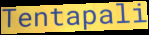
Tentapali